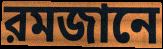
রমজানে